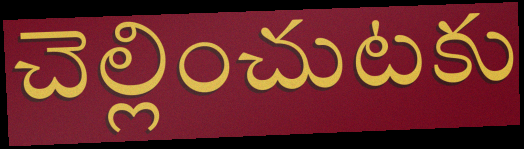
చెల్లించుటకు